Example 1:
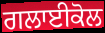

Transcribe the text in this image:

ਗਲਾਈਕੋਲ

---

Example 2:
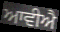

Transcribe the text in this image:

ਆਵੀਐ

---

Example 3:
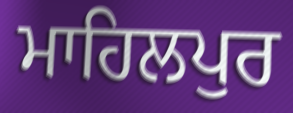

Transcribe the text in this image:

ਮਾਹਿਲਪੁਰ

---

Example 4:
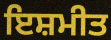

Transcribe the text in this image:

ਇਸ਼ਮੀਤ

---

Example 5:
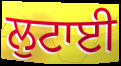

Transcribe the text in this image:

ਲੁਟਾਈ